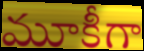
మూకీగా